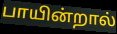
பாயின்றால்